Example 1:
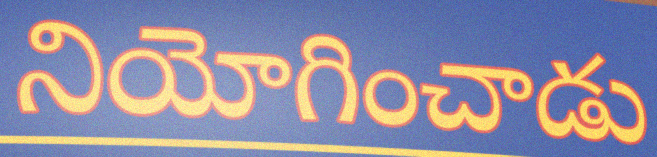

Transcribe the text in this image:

నియోగించాడు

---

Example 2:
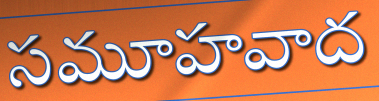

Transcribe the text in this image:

సమూహవాద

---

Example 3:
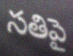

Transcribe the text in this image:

సతిపై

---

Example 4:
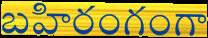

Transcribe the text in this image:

బహిరంగంగా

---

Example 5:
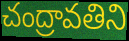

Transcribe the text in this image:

చంద్రావతిని